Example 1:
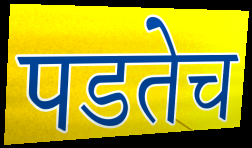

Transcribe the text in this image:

पडतेच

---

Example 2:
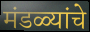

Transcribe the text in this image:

मंडळ्यांचे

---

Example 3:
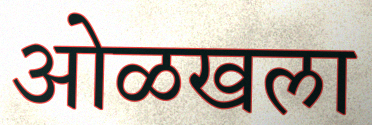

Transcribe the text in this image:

ओळखला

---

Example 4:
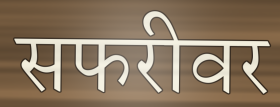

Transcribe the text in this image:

सफरीवर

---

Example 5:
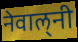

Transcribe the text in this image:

नेवाल्नी